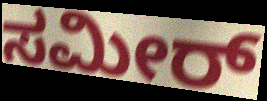
ಸಮೀರ್